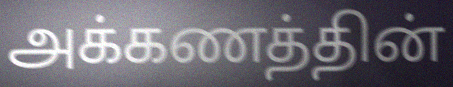
அக்கணத்தின்